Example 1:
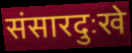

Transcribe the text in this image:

संसारदुःखे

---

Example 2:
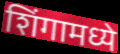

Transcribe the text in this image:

शिंगामध्ये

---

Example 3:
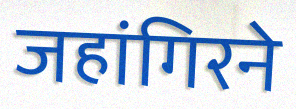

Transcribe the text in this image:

जहांगिरने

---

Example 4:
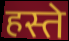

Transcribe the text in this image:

हस्ते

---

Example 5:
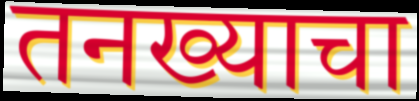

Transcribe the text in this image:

तनख्याचा